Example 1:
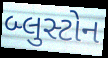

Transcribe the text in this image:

બ્લુસ્ટોન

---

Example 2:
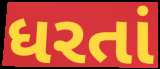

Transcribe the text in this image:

ધરતાં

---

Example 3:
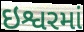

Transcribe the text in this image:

ઇશ્વરમાં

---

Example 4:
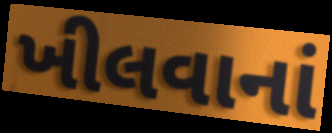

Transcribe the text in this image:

ખીલવાનાં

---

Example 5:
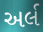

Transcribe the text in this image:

અર્લ